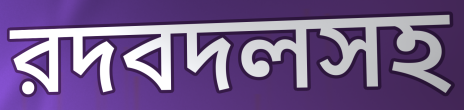
রদবদলসহ